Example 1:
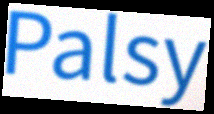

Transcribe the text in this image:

Palsy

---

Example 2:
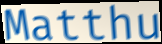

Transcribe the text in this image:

Matthu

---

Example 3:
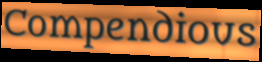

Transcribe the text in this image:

Compendious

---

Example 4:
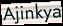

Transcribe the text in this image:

Ajinkya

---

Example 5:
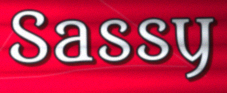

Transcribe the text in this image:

Sassy